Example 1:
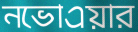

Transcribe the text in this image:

নভোএয়ার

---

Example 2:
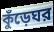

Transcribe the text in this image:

কুঁড়েঘর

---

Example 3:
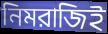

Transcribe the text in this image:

নিমরাজিই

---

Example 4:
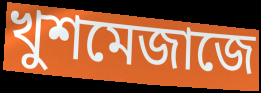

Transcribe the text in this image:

খুশমেজাজে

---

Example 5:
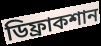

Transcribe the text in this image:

ডিফ্রাকশান